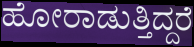
ಹೋರಾಡುತ್ತಿದ್ದರೆ